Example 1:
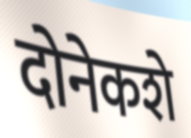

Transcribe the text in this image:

दोनेकशे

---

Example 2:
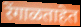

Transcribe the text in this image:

रेंगाळताहेत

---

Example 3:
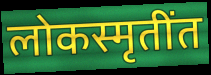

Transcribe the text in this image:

लोकस्मृतींत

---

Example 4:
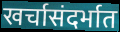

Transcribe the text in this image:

खर्चासंदर्भात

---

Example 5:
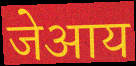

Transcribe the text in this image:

जेआय